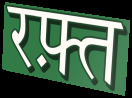
रफ़्त